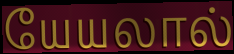
யேயலால்